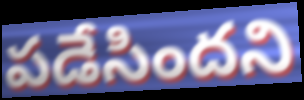
పడేసిందని